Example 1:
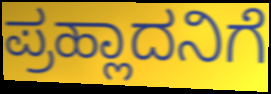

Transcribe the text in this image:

ಪ್ರಹ್ಲಾದನಿಗೆ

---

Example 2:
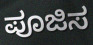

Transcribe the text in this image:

ಪೂಜಿಸ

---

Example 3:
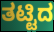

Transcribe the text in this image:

ತಟ್ಟಿದ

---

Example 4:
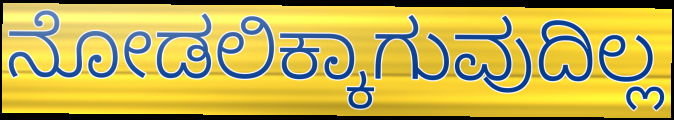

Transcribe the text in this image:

ನೋಡಲಿಕ್ಕಾಗುವುದಿಲ್ಲ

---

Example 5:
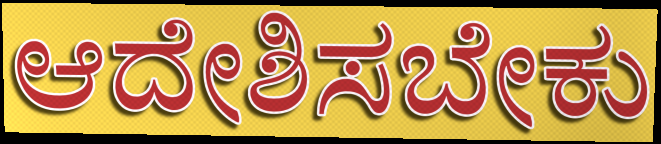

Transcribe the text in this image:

ಆದೇಶಿಸಬೇಕು